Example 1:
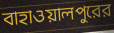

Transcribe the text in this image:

বাহাওয়ালপুরের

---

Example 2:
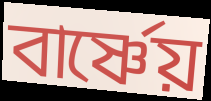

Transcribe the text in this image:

বার্ষ্ণেয়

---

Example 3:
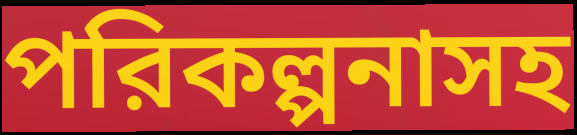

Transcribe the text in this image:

পরিকল্পনাসহ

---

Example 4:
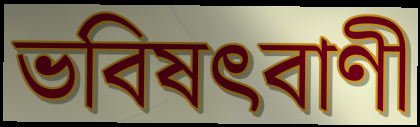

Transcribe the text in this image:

ভবিষৎবাণী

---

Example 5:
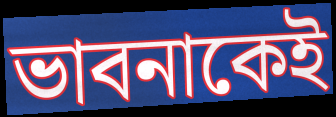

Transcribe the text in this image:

ভাবনাকেই